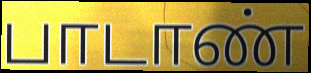
பாடாண்